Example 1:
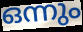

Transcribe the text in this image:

ഒന്നും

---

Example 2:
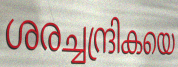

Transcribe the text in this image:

ശരച്ചന്ദ്രികയെ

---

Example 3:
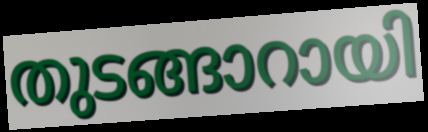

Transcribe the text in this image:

തുടങ്ങാറായി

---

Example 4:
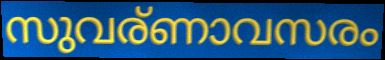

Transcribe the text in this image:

സുവര്ണാവസരം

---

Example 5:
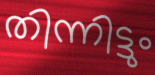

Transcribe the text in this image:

തിന്നിട്ടും